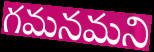
గమనమని